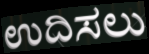
ಉದಿಸಲು